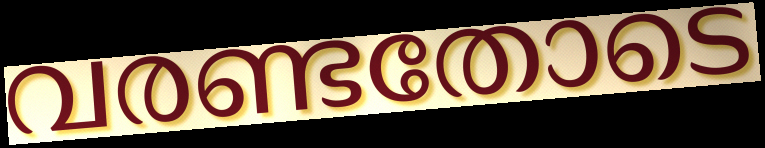
വരണ്ടതോടെ